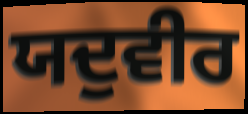
ਯਦੁਵੀਰ